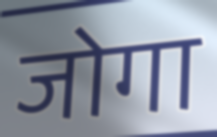
जोगा